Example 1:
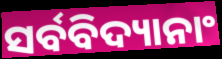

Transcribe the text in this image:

ସର୍ବବିଦ୍ୟାନାଂ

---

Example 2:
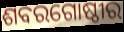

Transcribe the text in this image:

ଶବରଗୋଷ୍ଠୀର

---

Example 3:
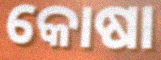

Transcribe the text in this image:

କୋଷା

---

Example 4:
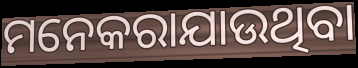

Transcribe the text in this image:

ମନେକରାଯାଉଥିବା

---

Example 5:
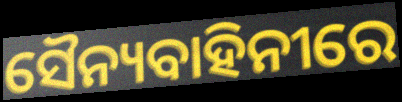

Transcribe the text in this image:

ସୈନ୍ୟବାହିନୀରେ